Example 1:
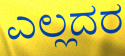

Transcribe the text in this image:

ಎಲ್ಲದರ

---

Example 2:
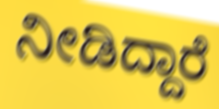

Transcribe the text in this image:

ನೀಡಿದ್ದಾರೆ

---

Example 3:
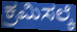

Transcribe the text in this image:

ಕ್ರಮಿಸಲ್ಕೆ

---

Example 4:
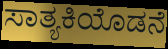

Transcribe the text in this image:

ಸಾತ್ಯಕಿಯೊಡನೆ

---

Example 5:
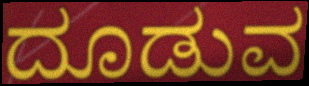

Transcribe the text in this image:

ದೂಡುವ